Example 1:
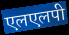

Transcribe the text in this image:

एलएलपी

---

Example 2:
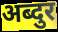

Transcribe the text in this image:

अब्दुर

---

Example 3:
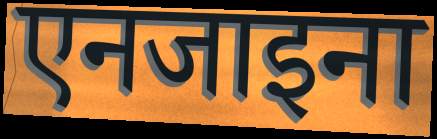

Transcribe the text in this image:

एनजाइना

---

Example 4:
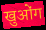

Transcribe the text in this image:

खुओंग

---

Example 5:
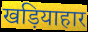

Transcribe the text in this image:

खड़ियाहार